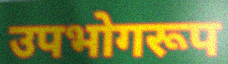
उपभोगरूप